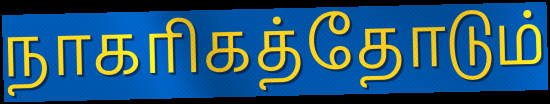
நாகரிகத்தோடும்